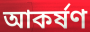
আকর্ষণ